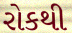
રોકથી